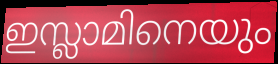
ഇസ്ലാമിനെയും